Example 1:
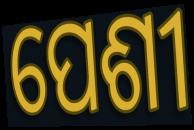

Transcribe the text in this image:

ପେଶୀ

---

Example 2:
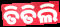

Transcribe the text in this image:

ତିତିଲି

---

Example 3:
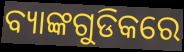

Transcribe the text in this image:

ବ୍ୟାଙ୍କଗୁଡିକରେ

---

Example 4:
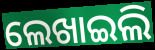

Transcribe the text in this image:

ଲେଖାଇଲି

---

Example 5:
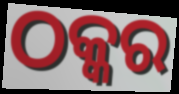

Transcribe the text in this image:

ଠକ୍କର